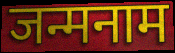
जन्मनाम